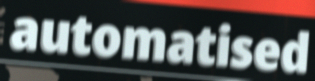
automatised